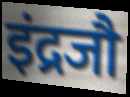
इंद्रजौ